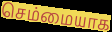
செம்மையாக